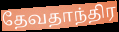
தேவதாந்திர